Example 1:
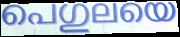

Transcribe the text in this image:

പെഗുലയെ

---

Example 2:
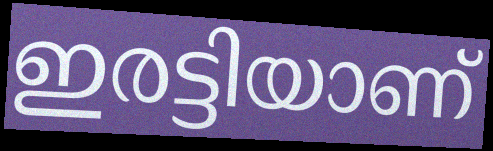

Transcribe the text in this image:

ഇരട്ടിയാണ്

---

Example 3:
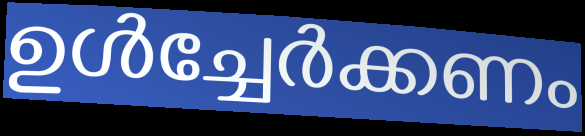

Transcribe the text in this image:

ഉൾച്ചേർക്കണം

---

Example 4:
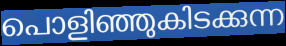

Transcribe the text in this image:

പൊളിഞ്ഞുകിടക്കുന്ന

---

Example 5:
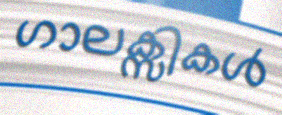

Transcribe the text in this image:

ഗാലക്സികൾ